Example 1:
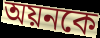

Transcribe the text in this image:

অয়নকে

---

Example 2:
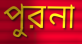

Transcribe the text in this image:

পুরনা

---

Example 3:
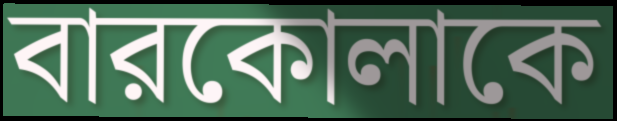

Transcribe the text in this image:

বারকোলাকে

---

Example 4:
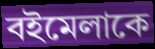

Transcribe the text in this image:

বইমেলাকে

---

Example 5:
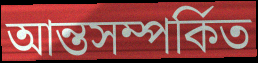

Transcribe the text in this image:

আন্তসম্পর্কিত